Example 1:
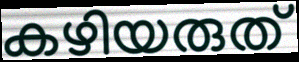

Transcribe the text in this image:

കഴിയരുത്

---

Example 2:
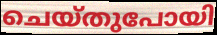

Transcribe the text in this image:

ചെയ്തുപോയി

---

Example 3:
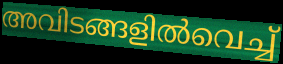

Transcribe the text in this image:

അവിടങ്ങളിൽവെച്ച്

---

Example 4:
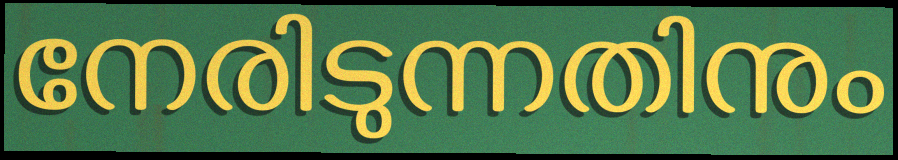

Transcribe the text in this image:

നേരിടുന്നതിനും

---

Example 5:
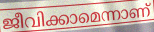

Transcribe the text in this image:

ജീവിക്കാമെന്നാണ്